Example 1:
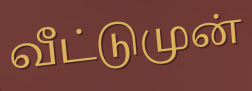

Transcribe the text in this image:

வீட்டுமுன்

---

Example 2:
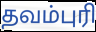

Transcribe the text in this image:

தவம்புரி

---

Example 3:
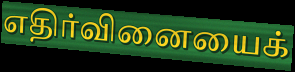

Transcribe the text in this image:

எதிர்வினையைக்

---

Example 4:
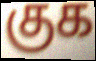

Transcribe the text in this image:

குக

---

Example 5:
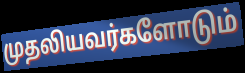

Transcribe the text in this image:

முதலியவர்களோடும்